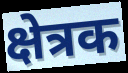
क्षेत्रक